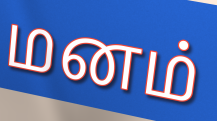
மனம்